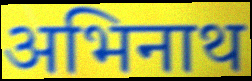
अभिनाथ